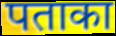
पताका